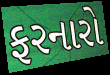
ફરનારો